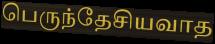
பெருந்தேசியவாத